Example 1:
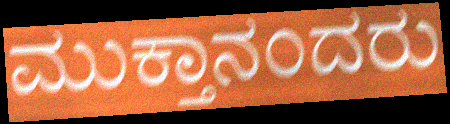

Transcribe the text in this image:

ಮುಕ್ತಾನಂದರು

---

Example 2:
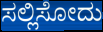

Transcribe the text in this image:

ಸಲ್ಲಿಸೋದು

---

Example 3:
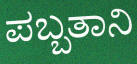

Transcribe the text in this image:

ಪಬ್ಬತಾನಿ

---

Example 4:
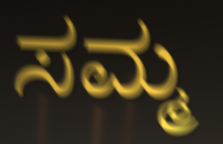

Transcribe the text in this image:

ಸಮ್ಮ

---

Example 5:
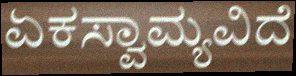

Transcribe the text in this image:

ಏಕಸ್ವಾಮ್ಯವಿದೆ